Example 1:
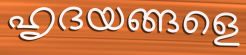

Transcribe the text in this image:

ഹൃദയങ്ങളെ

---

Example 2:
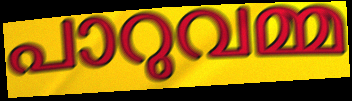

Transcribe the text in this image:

പാറുവമ്മ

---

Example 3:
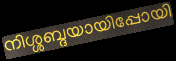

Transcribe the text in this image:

നിശ്ശബ്ദയായിപ്പോയി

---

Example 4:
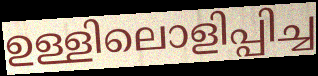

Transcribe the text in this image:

ഉള്ളിലൊളിപ്പിച്ച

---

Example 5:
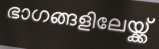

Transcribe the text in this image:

ഭാഗങ്ങളിലേയ്ക്ക്